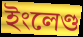
ইংলেণ্ড